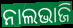
ନାଲଭାଜି